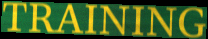
TRAINING